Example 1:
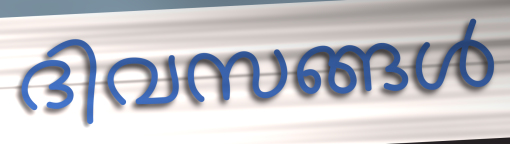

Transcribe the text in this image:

ദിവസങ്ങൾ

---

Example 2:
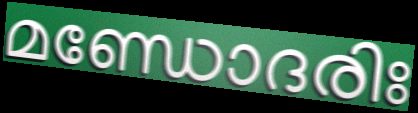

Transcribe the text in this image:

മണ്ഡോദരിഃ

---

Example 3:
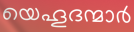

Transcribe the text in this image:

യെഹൂദന്മാർ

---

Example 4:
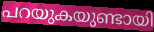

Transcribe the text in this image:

പറയുകയുണ്ടായി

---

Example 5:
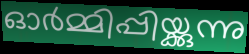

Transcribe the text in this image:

ഓർമ്മിപ്പിയ്ക്കുന്നു